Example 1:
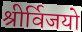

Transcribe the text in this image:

श्रीर्विजयो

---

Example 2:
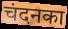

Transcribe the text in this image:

चंदनका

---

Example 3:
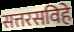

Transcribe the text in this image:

सत्तरसविहे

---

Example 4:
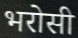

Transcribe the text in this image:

भरोसी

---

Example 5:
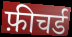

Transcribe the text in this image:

फ़ीचर्ड